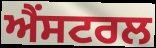
ਐਂਸਟਰਲ